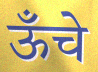
ऊँचे